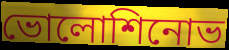
ভোলোশিনোভ